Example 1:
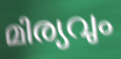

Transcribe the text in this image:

മിര്യവും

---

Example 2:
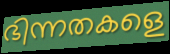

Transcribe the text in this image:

ഭിന്നതകളെ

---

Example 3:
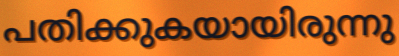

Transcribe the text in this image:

പതിക്കുകയായിരുന്നു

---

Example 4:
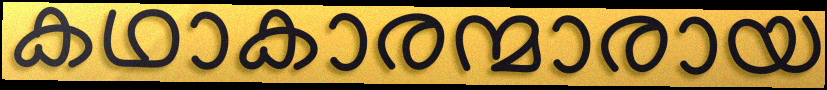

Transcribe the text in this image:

കഥാകാരന്മാരായ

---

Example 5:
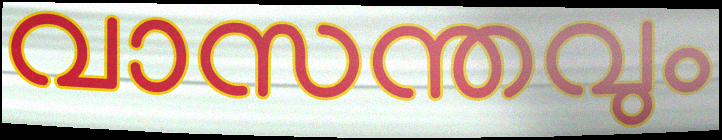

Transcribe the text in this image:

വാസന്തവും